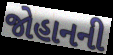
જોહાનની